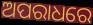
ଅପରାଧରେ